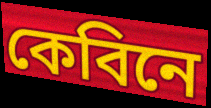
কেবিনে